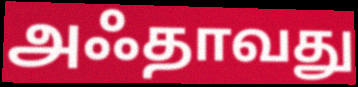
அஃதாவது